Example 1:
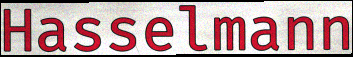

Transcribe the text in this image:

Hasselmann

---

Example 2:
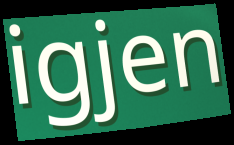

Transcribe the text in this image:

igjen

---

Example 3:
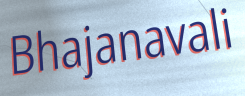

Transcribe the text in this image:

Bhajanavali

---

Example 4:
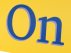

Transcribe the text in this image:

On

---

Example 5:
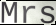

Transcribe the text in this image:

Mrs